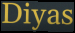
Diyas